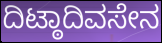
ದಿಟ್ಠಾದಿವಸೇನ